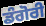
ਡੰਗੋਰੀ